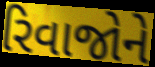
રિવાજોને